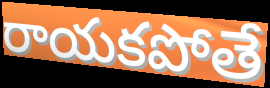
రాయకపోతే